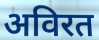
अविरत